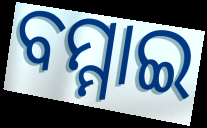
ବମ୍ମାଇ